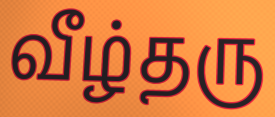
வீழ்தரு